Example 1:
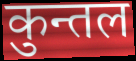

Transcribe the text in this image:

कुन्तल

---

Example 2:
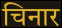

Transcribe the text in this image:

चिनार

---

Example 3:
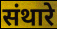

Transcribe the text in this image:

संथारे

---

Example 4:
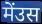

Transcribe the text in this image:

मेंउस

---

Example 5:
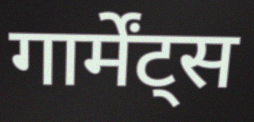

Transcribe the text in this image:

गार्मेंट्स